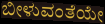
ಬೀಳುವಂತೆಯೇ